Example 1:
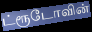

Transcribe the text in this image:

ட்ரூடோவின்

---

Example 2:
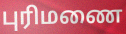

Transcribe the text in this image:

புரிமணை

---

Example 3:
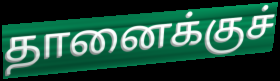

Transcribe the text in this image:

தானைக்குச்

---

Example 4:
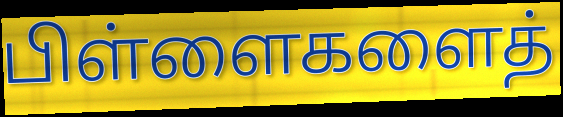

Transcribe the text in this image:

பிள்ளைகளைத்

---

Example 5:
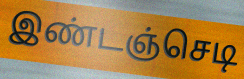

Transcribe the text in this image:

இண்டஞ்செடி